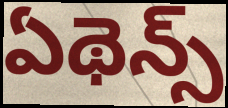
ఏథెన్స్